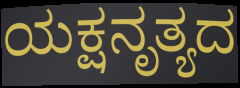
ಯಕ್ಷನೃತ್ಯದ